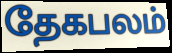
தேகபலம்